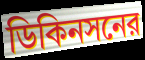
ডিকিনসনের